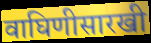
वाघिणीसारखी